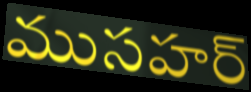
ముసహర్